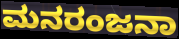
ಮನರಂಜನಾ